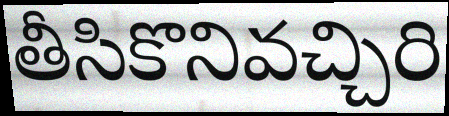
తీసికొనివచ్చిరి